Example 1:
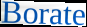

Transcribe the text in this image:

Borate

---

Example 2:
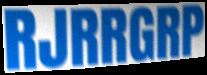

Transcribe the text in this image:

RJRRGRP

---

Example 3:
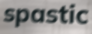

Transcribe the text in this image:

spastic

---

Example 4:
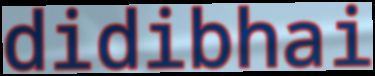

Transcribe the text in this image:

didibhai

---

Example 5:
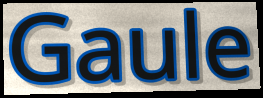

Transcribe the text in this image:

Gaule